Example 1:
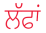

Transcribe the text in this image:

ਲੱਫਾਂ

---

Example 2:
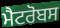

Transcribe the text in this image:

ਮੈਟਰੋਬਸ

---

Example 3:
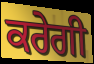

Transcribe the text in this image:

ਕਰੇਗੀ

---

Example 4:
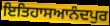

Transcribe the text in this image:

ਇਤਿਹਾਸਆਨੰਦਪੁਰ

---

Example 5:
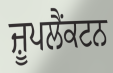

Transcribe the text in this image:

ਜ਼ੂਪਲੈਂਕਟਨ